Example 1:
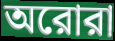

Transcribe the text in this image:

অরোরা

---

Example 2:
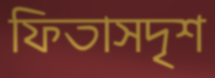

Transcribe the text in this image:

ফিতাসদৃশ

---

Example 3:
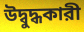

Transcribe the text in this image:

উদ্বুদ্ধকারী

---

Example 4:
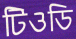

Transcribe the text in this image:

টিওডি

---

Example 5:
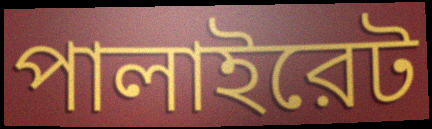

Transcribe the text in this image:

পালাইরেট